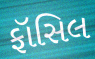
ફૉસિલ